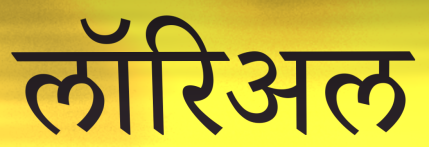
लॉरिअल